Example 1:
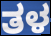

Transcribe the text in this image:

ತಳ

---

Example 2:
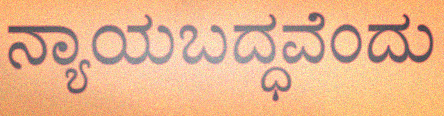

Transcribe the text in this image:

ನ್ಯಾಯಬದ್ಧವೆಂದು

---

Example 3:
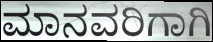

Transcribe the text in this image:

ಮಾನವರಿಗಾಗಿ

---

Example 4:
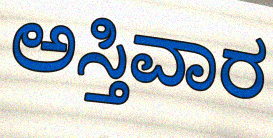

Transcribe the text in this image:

ಅಸ್ತಿವಾರ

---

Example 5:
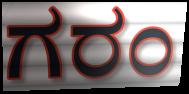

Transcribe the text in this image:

ಗರಂ